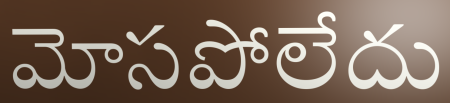
మోసపోలేదు